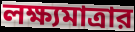
লক্ষ্যমাত্রার